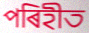
পৰিহীত